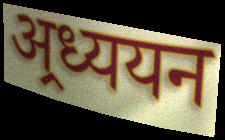
अ्रध्ययन